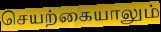
செயற்கையாலும்